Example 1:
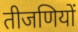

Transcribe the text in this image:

तीजणियों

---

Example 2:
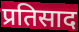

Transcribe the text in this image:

प्रतिसाद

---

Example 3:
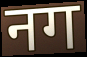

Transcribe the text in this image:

नग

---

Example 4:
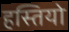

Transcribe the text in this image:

हस्तियो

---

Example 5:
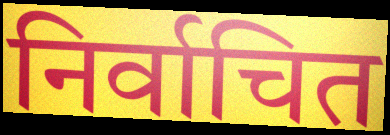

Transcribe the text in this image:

निर्वाचित